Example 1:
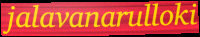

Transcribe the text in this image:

jalavanarulloki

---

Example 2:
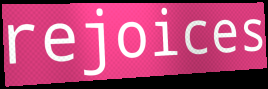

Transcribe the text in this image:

rejoices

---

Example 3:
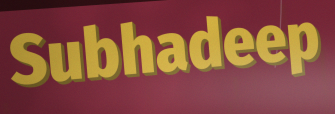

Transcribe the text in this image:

Subhadeep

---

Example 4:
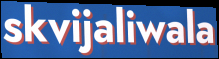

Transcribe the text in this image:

skvijaliwala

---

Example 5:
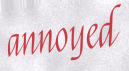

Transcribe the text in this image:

annoyed